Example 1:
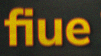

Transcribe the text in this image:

fiue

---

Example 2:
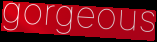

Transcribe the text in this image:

gorgeous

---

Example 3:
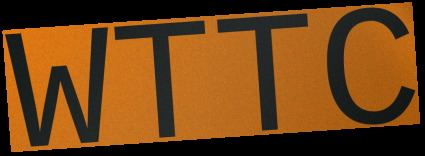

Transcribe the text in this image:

WTTC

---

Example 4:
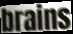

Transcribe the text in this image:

brains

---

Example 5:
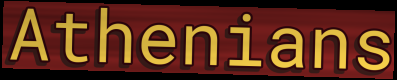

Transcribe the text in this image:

Athenians